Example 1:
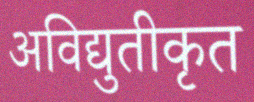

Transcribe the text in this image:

अविद्युतीकृत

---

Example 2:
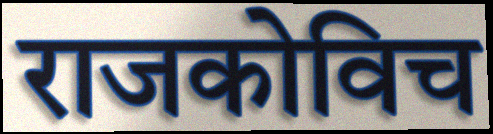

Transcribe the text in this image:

राजकोविच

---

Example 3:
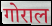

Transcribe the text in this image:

गोराल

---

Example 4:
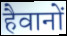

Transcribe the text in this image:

हैवानों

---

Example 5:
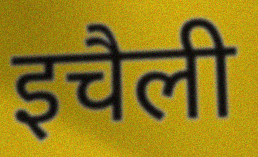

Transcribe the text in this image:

इचैली